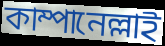
কাম্পানেল্লাই